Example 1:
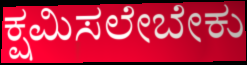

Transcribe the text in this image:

ಕ್ಷಮಿಸಲೇಬೇಕು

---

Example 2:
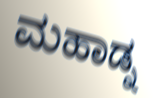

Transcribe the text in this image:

ಮಹಾಡ್ನ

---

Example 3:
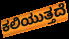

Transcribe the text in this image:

ಕಲಿಯುತ್ತದೆ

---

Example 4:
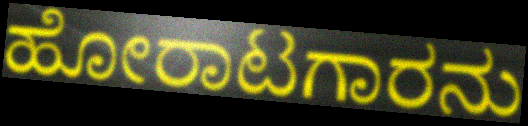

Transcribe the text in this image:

ಹೋರಾಟಗಾರನು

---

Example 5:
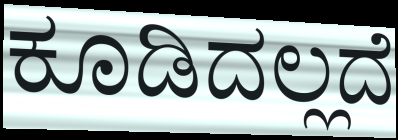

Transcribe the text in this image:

ಕೂಡಿದಲ್ಲದೆ